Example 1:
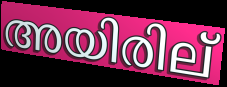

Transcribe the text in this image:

അയിരില്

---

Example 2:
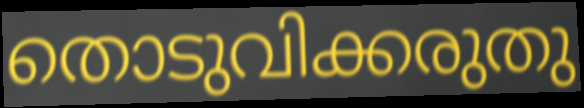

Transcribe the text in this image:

തൊടുവിക്കരുതു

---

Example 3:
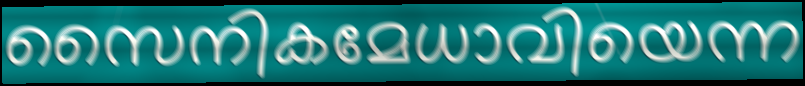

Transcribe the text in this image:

സൈനികമേധാവിയെന്ന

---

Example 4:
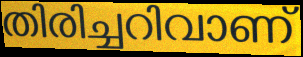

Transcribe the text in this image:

തിരിച്ചറിവാണ്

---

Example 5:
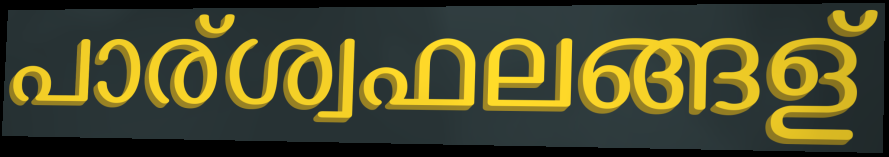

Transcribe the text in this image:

പാര്ശ്വഫലങ്ങള്